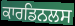
ਕਾਰਡਿਨਲਸ